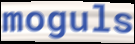
moguls